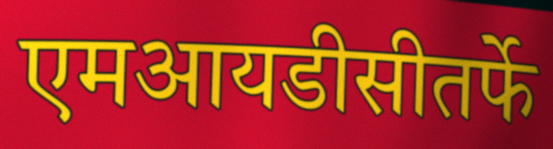
एमआयडीसीतर्फे